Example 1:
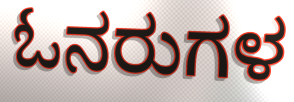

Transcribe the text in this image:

ಓನರುಗಳ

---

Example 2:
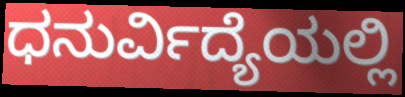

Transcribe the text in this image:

ಧನುರ್ವಿದ್ಯೆಯಲ್ಲಿ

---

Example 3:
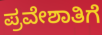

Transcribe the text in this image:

ಪ್ರವೇಶಾತಿಗೆ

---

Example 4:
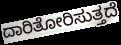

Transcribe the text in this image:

ದಾರಿತೋರಿಸುತ್ತದೆ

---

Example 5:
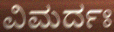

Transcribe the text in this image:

ವಿಮರ್ದಃ